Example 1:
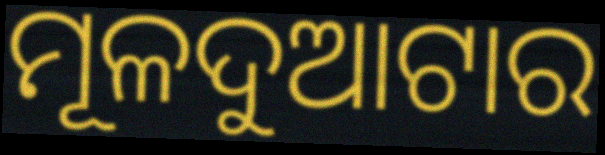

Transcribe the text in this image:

ମୂଳଦୁଆଟାର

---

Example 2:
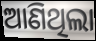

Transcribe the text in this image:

ଆଣିଥିଲା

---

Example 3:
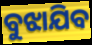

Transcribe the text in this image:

ବୁଝାଯିବ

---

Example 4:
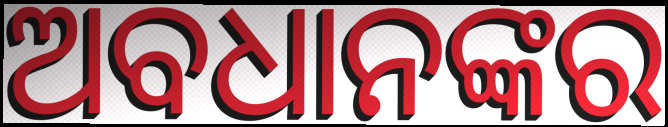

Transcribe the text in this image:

ଅବଧାନଙ୍କର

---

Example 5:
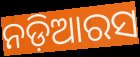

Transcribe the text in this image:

ନଡ଼ିଆରସ